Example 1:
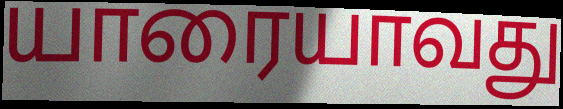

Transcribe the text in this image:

யாரையாவது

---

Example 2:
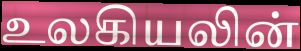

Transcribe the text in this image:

உலகியலின்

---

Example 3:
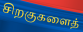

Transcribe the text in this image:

சிறகுகளைத்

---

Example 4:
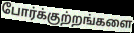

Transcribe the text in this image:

போர்க்குற்றங்களை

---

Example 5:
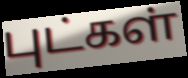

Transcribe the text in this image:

புட்கள்